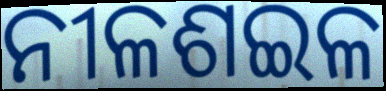
ନୀଳଶଇଳ